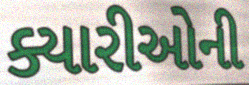
ક્યારીઓની